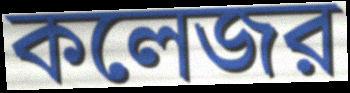
কলেজর